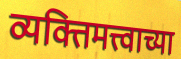
व्यक्तिमत्त्वाच्या